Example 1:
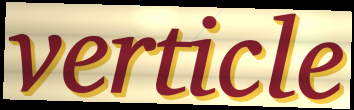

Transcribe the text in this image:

verticle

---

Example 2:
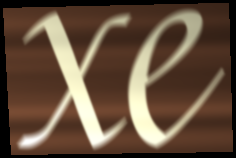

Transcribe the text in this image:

xe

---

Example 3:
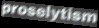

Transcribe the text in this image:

proselytism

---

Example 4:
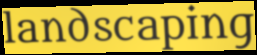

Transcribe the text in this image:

landscaping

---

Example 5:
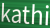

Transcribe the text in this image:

kathi